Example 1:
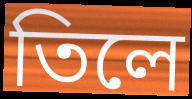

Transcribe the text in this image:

তিলে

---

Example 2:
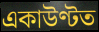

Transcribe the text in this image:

একাউণ্টত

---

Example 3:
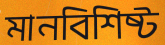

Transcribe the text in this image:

মানবিশিষ্ট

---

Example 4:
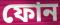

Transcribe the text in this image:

ফোন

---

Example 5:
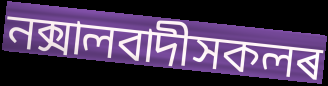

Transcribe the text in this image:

নক্সালবাদীসকলৰ